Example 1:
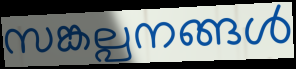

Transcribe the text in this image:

സങ്കല്പനങ്ങൾ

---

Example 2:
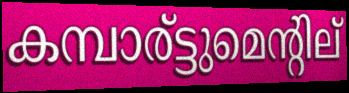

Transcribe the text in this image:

കമ്പാര്ട്ടുമെന്റില്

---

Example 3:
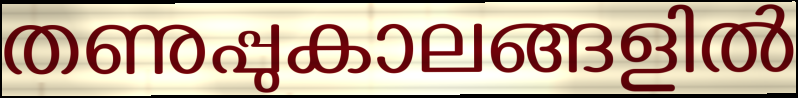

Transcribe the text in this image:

തണുപ്പുകാലങ്ങളിൽ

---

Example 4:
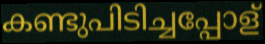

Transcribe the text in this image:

കണ്ടുപിടിച്ചപ്പോള്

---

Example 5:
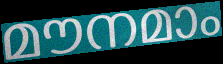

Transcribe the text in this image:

മൗനമാം